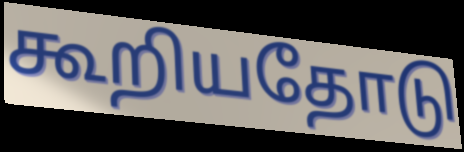
கூறியதோடு